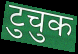
टुचुक